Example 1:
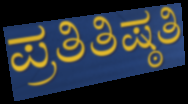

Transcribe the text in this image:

ಪ್ರತಿತಿಷ್ಠತಿ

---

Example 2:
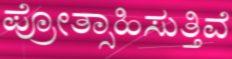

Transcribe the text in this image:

ಪ್ರೋತ್ಸಾಹಿಸುತ್ತಿವೆ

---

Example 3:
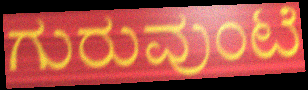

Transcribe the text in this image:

ಗುರುವುಂಟೆ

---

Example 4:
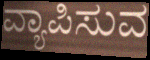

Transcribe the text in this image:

ವ್ಯಾಪಿಸುವ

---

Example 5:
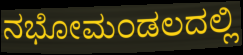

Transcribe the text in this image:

ನಭೋಮಂಡಲದಲ್ಲಿ